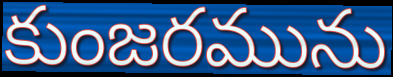
కుంజరమును